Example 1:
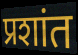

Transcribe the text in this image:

प्रशांत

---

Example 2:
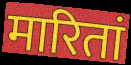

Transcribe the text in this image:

मारितां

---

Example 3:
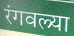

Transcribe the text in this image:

रंगवल्या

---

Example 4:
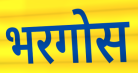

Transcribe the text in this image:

भरगोस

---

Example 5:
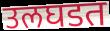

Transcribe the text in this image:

उलघडत